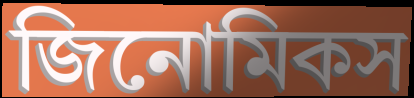
জিনোমিকস